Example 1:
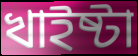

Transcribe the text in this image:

খাইষ্টা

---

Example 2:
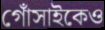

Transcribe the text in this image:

গোঁসাইকেও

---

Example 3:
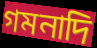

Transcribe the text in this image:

গমনাদি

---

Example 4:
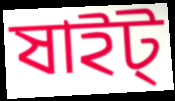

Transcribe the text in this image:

ষাইট্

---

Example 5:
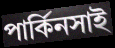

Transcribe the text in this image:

পার্কিনসাই